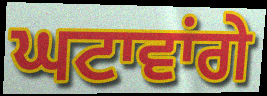
ਘਟਾਵਾਂਗੇ